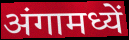
अंगामध्यें